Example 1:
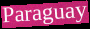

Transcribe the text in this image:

Paraguay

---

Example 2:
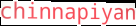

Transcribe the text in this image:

chinnapiyan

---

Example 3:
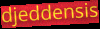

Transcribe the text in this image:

djeddensis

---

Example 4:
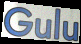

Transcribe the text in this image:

Gulu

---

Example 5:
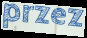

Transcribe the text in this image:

przez